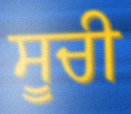
ਸੂਚੀ